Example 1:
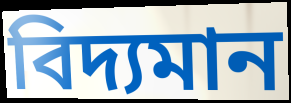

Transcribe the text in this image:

বিদ্যমান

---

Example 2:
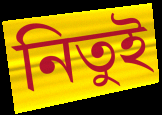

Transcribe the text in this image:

নিতুই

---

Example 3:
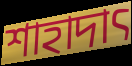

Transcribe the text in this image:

শাহাদাৎ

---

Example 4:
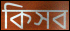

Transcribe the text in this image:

কিসব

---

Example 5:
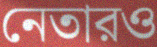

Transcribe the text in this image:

নেতারও